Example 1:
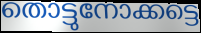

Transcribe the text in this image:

തൊട്ടുനോക്കട്ടെ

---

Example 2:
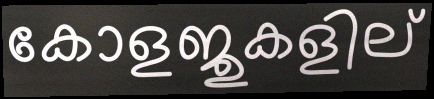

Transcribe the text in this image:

കോളജുകളില്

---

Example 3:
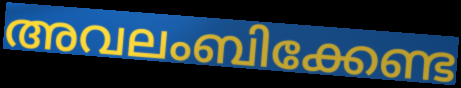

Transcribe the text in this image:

അവലംബിക്കേണ്ട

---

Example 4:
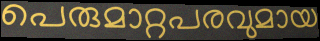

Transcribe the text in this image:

പെരുമാറ്റപരവുമായ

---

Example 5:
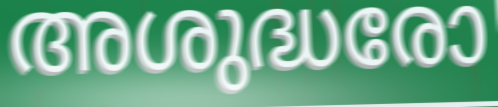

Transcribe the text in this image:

അശുദ്ധരോ